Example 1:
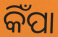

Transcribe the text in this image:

କିଁପା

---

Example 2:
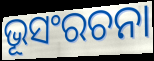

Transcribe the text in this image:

ଭୂସଂରଚନା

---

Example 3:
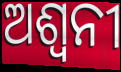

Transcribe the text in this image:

ଅଶ୍ୱନୀ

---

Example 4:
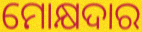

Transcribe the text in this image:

ମୋକ୍ଷଦାର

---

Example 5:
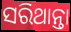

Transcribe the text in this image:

ସରିଥାନ୍ତା